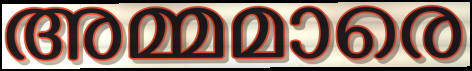
അമ്മമാരെ